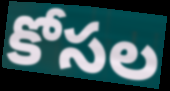
కోసల